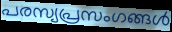
പരസ്യപ്രസംഗങ്ങൾ